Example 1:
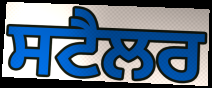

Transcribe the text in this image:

ਸਟੈਲਰ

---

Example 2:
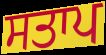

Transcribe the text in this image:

ਸਤਾਪ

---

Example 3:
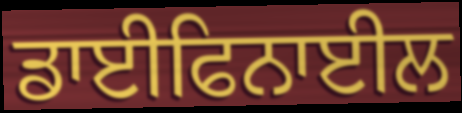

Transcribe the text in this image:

ਡਾਈਫਿਨਾਈਲ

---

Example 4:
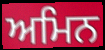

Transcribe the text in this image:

ਅਮਿਨ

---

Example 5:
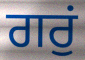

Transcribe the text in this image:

ਗਰੁਂ